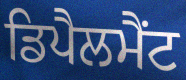
ਡਿਪੈਲਮੈਂਟ